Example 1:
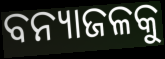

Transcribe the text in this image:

ବନ୍ୟାଜଳକୁ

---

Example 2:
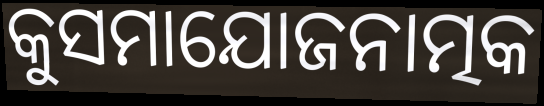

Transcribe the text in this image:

କୁସମାଯୋଜନାତ୍ମକ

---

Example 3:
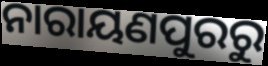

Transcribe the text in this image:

ନାରାୟଣପୁରରୁ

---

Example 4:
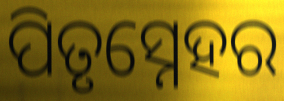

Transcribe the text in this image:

ପିତୃସ୍ନେହର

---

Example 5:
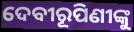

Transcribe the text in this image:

ଦେବୀରୂପିଣୀଙ୍କୁ